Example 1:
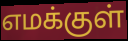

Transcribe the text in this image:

எமக்குள்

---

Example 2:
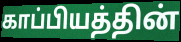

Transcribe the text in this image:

காப்பியத்தின்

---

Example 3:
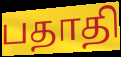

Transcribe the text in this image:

பதாதி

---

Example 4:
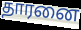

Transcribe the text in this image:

தாரனை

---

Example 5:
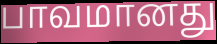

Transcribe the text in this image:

பாவமானது